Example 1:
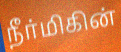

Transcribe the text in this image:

நீர்மிகின்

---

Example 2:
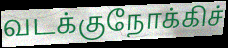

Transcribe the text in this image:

வடக்குநோக்கிச்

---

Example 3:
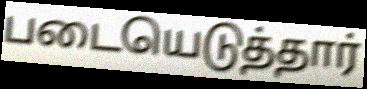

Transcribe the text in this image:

படையெடுத்தார்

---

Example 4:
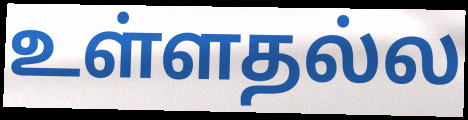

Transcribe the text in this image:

உள்ளதல்ல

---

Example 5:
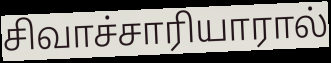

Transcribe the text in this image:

சிவாச்சாரியாரால்